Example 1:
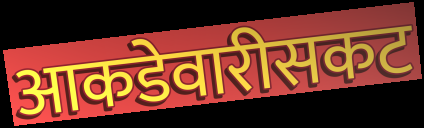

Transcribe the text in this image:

आकडेवारीसकट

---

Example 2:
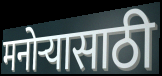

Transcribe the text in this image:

मनोऱ्यासाठी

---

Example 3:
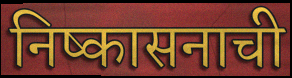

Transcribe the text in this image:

निष्कासनाची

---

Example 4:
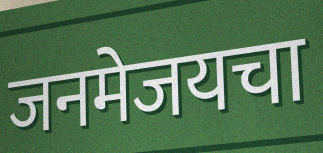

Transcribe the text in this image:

जनमेजयचा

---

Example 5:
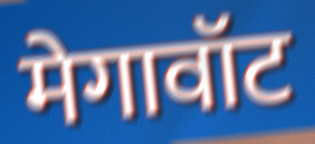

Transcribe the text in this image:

मेगावॉट